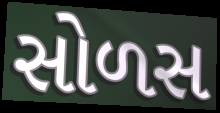
સોળસ